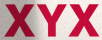
XYX